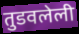
तुडवलेली